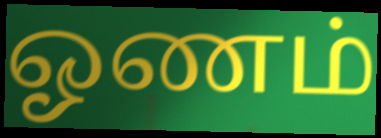
ஓணம்